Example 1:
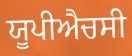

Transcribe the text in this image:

ਯੂਪੀਐਚਸੀ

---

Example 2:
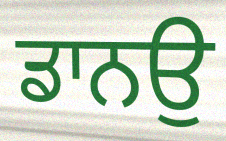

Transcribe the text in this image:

ਡਾਨਉ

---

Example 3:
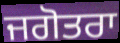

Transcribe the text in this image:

ਜਗੋਤਰਾ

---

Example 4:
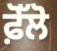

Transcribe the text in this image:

ਫ਼ੋੱਲੋ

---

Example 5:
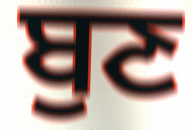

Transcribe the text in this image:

ਬੁਣ